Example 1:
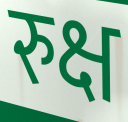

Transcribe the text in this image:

रुक्ष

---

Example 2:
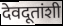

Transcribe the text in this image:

देवदूतांशी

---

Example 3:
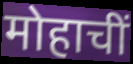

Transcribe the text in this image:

मोहाचीं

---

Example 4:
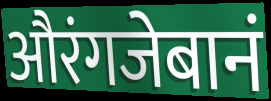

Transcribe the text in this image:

औरंगजेबानं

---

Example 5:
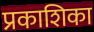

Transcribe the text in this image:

प्रकाशिका